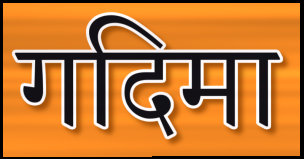
गदिमा